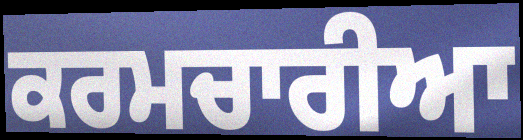
ਕਰਮਚਾਰੀਆ